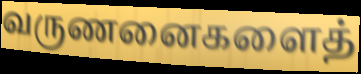
வருணனைகளைத்